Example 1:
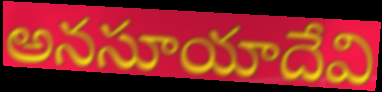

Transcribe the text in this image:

అనసూయాదేవి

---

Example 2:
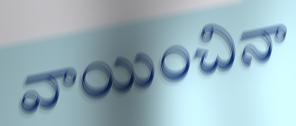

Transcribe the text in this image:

వాయించినా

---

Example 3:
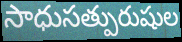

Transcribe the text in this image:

సాధుసత్పురుషుల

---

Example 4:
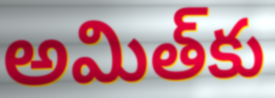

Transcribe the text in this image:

అమిత్‌కు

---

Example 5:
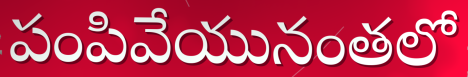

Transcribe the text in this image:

పంపివేయునంతలో